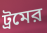
ট্রমের